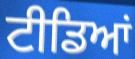
ਟੀਡਿਆਂ